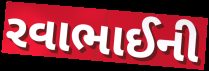
રવાભાઈની